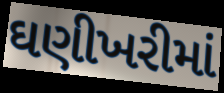
ઘણીખરીમાં